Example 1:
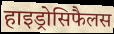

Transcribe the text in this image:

हाइड्रोसिफैलस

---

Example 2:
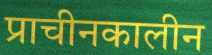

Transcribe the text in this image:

प्राचीनकालीन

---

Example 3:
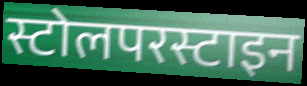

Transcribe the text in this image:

स्टोलपरस्टाइन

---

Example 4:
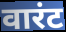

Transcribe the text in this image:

वारंट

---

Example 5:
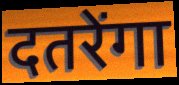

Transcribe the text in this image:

दतरेंगा